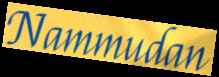
Nammudan